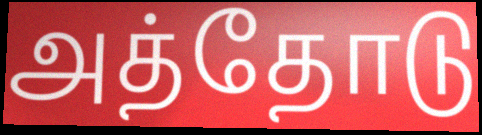
அத்தோடு